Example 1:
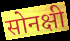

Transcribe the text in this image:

सोनक्षी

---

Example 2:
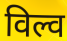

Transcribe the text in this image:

विल्व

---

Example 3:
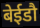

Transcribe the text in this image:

बेईडौ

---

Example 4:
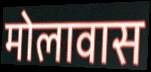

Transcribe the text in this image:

मोलावास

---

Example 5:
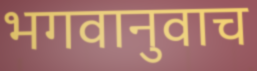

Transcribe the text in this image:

भगवानुवाच